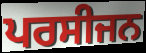
ਪਰਸੀਜਨ